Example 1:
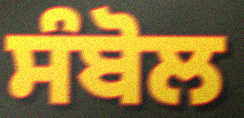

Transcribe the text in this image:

ਸੰਬੋਲ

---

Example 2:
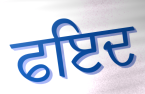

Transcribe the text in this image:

ਫਇਦ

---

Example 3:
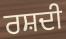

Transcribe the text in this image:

ਰਸ਼ਦੀ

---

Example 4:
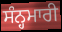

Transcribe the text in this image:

ਸੰਨ੍ਹਮਾਰੀ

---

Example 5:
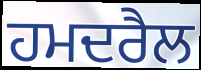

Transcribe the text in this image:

ਹਮਦਰੈਲ